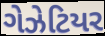
ગેઝેટિયર